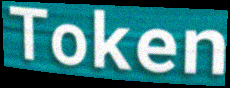
Token